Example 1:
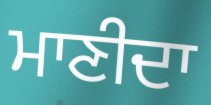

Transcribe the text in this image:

ਮਾਣੀਦਾ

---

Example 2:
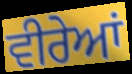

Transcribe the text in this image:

ਵੀਰੇਆਂ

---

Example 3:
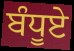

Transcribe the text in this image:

ਬੰਧੂਏ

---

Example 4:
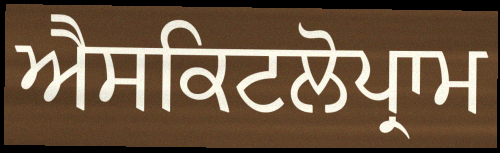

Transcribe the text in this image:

ਐਸਕਿਟਲੋਪ੍ਰਾਮ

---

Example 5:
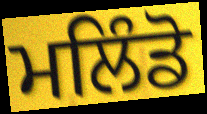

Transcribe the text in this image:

ਮਲਿੰਡੋ